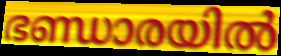
ഭണ്ഡാരയിൽ